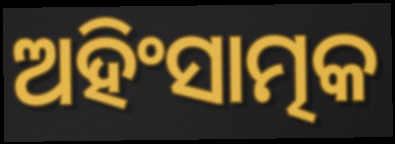
ଅହିଂସାତ୍ମକ